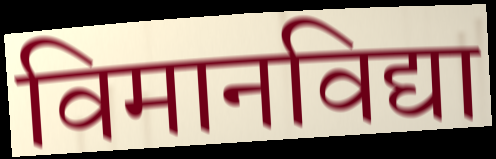
विमानविद्या